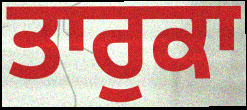
ਤਾਰੁਕਾ